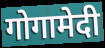
गोगामेदी